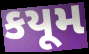
કયૂમ